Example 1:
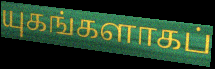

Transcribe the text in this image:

யுகங்களாகப்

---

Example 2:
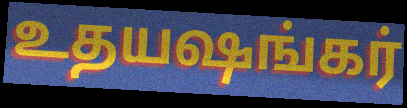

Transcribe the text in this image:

உதயஷங்கர்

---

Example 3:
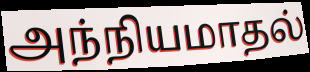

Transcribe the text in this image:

அந்நியமாதல்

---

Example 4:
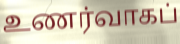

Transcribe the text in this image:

உணர்வாகப்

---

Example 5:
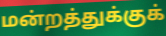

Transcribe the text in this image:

மன்றத்துக்குக்